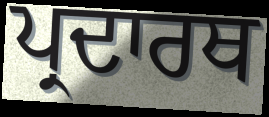
ਪ੍ਰਦਾਰਥ